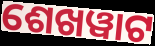
ଶେଖୱାଟ